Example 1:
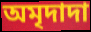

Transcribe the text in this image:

অমৃদাদা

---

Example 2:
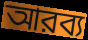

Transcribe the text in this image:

আরব্য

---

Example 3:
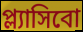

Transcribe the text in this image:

প্ল্যাসিবো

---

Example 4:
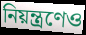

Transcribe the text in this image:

নিয়ন্ত্রণেও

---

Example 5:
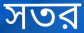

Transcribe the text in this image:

সতর